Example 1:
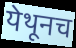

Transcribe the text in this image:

येथूनच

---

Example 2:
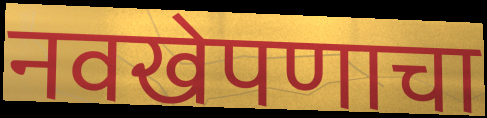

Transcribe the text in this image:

नवखेपणाचा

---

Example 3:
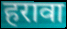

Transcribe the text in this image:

हरावा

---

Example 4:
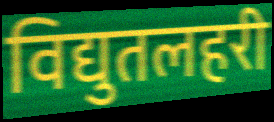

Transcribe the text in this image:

विद्युतलहरी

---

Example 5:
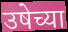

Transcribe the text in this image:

उषेच्या